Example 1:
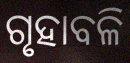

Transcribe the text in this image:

ଗୃହାବଳି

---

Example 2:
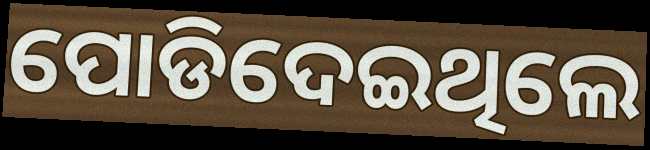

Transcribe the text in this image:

ପୋଡିଦେଇଥିଲେ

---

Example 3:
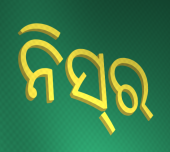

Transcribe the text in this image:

ନିସ୍‌ର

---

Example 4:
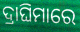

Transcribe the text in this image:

ଦ୍ରାଘିମାରେ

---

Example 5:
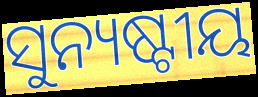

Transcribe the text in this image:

ସୁନ୍ୟଷ୍ଟୀୟ